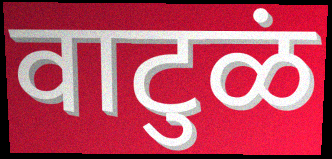
वाटुळं